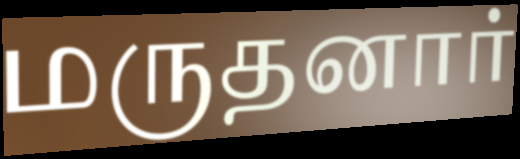
மருதனார்